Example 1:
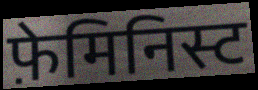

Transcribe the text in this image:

फ़ेमिनिस्ट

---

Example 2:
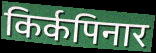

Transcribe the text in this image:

किर्कपिनार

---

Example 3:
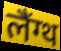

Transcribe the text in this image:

लैंग्थ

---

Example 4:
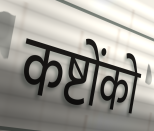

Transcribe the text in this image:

कष्टोंको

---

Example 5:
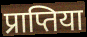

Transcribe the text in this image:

प्राप्तिया